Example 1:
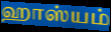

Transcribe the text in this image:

ஹாஸ்யம்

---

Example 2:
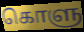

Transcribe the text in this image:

கொளு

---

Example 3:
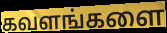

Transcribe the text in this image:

கவளங்களை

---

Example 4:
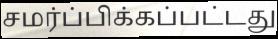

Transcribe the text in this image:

சமர்ப்பிக்கப்பட்டது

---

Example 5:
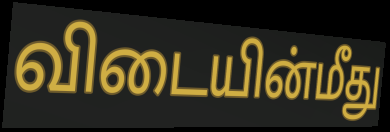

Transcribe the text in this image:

விடையின்மீது